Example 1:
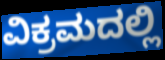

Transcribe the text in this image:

ವಿಕ್ರಮದಲ್ಲಿ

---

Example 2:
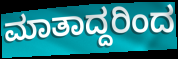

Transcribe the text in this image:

ಮಾತಾದ್ದರಿಂದ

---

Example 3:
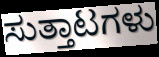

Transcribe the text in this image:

ಸುತ್ತಾಟಗಳು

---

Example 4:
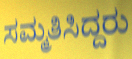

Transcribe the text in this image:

ಸಮ್ಮತಿಸಿದ್ದರು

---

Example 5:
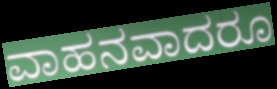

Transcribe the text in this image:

ವಾಹನವಾದರೂ